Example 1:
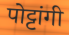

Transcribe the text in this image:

पोट्टांगी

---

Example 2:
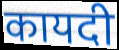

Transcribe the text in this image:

कायदी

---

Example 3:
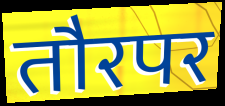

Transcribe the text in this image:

तौरपर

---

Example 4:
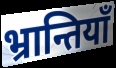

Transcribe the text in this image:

भ्रान्तियाँ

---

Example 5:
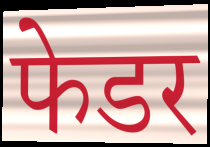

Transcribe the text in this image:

फेडर